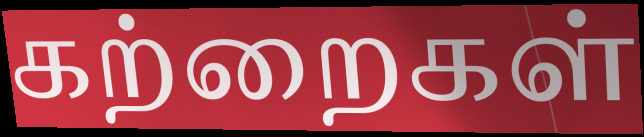
கற்றைகள்